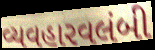
વ્યવહારવલંબી